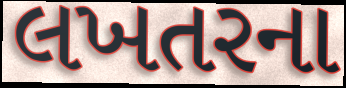
લખતરના